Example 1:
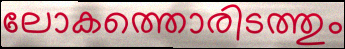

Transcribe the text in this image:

ലോകത്തൊരിടത്തും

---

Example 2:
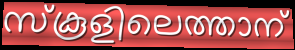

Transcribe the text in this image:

സ്കൂളിലെത്താന്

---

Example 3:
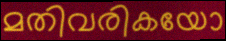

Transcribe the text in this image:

മതിവരികയോ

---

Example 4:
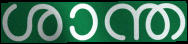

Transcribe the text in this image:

ശാന്ത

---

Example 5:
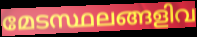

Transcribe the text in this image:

മേടസ്ഥലങ്ങളിവ